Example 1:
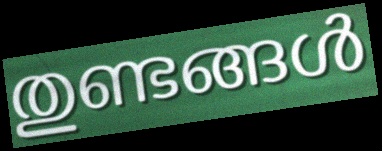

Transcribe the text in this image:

തുണ്ടങ്ങൾ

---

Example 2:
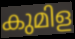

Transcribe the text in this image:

കുമിള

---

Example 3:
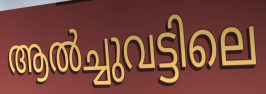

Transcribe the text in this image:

ആൽച്ചുവട്ടിലെ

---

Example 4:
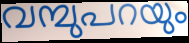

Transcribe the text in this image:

വമ്പുപറയും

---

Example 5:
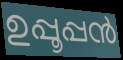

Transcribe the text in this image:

ഉപ്പൂപ്പൻ